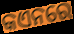
କଏନରେ